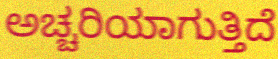
ಅಚ್ಚರಿಯಾಗುತ್ತಿದೆ